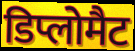
डिप्लोमैट